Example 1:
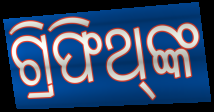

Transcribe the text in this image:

ଗ୍ରିଫିଥ୍‌ଙ୍କ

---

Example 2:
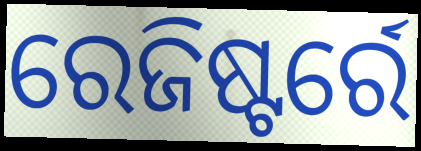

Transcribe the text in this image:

ରେଜିଷ୍ଟର୍ରେ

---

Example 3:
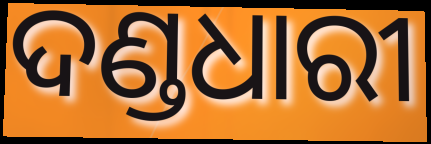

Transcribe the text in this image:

ଦଣ୍ଡଧାରୀ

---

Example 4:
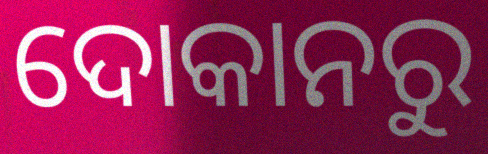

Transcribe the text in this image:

ଦୋକାନରୁ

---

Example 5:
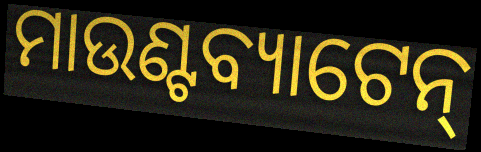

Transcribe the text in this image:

ମାଉଣ୍ଟବ୍ୟାଟେନ୍